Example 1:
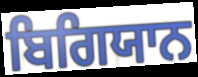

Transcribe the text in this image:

ਬਿਗਿਯਾਨ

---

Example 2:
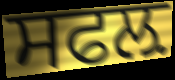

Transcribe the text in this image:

ਸਫਲ਼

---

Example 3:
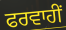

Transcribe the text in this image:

ਫਰਵਾਹੀਂ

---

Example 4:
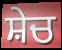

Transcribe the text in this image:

ਸ਼ੇਚ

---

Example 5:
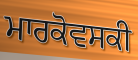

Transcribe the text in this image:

ਮਾਰਕੋਵਸਕੀ